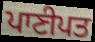
ਪਾਣੀਪਤ